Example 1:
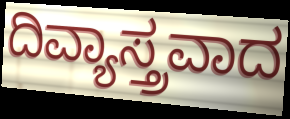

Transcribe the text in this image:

ದಿವ್ಯಾಸ್ತ್ರವಾದ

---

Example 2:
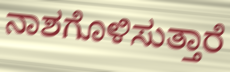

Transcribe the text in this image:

ನಾಶಗೊಳಿಸುತ್ತಾರೆ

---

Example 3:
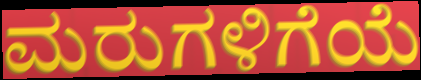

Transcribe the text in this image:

ಮರುಗಳಿಗೆಯೆ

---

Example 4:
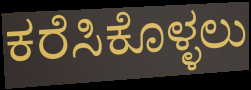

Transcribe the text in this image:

ಕರೆಸಿಕೊಳ್ಳಲು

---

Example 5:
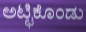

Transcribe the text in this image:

ಅಟ್ಟಿಕೊಂಡು